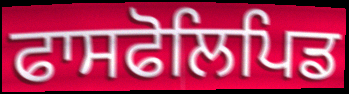
ਫਾਸਫੋਲਿਪਿਡ